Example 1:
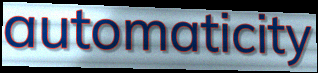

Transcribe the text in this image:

automaticity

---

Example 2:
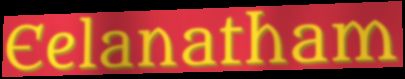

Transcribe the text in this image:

Eelanatham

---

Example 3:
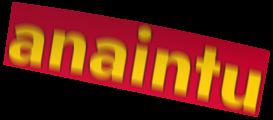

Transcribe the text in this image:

anaintu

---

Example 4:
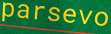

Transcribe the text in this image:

parsevo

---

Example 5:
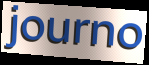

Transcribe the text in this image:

journo